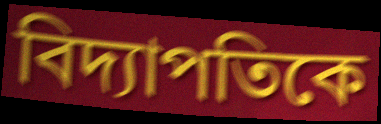
বিদ্যাপতিকে